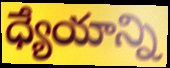
ధ్యేయాన్ని